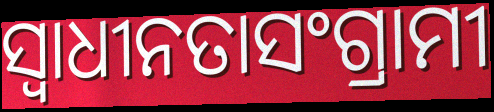
ସ୍ଵାଧୀନତାସଂଗ୍ରାମୀ